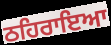
ਠਹਿਰਾਇਆ